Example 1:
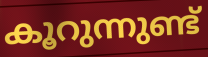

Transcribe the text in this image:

കൂറുന്നുണ്ട്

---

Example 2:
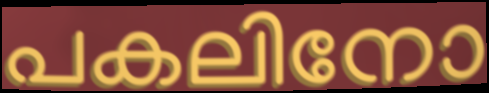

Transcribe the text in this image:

പകലിനോ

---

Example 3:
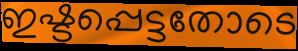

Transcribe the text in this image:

ഇഷ്ടപ്പെട്ടതോടെ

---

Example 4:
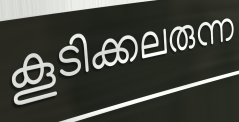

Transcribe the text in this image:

കൂടിക്കലരുന്ന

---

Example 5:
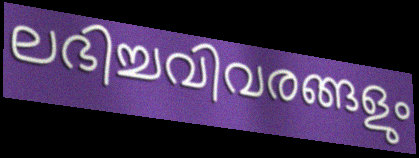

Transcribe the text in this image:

ലഭിച്ചവിവരങ്ങളും